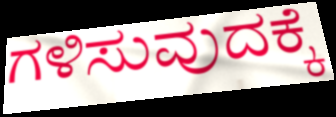
ಗಳಿಸುವುದಕ್ಕೆ